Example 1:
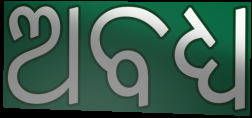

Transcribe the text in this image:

ଅବଧ୍ୟ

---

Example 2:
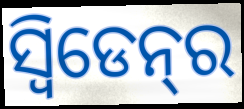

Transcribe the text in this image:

ସ୍ୱିଡେନ୍‍ର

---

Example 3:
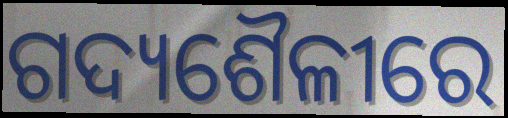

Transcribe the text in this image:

ଗଦ୍ୟଶୈଳୀରେ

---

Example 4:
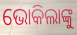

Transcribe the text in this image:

ଭୋକିଲାଙ୍କୁ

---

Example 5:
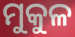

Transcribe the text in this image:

ମୁକୁଳ